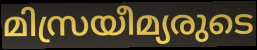
മിസ്രയീമ്യരുടെ